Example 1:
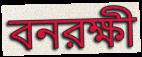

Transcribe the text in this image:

বনরক্ষী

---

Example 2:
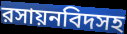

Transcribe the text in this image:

রসায়নবিদসহ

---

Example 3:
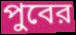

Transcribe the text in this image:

পুবের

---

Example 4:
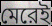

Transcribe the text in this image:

মেরেই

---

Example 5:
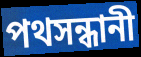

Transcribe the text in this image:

পথসন্ধানী